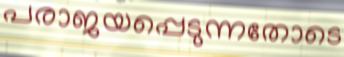
പരാജയപ്പെടുന്നതോടെ